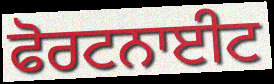
ਫੋਰਟਨਾਈਟ